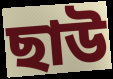
ছাউ